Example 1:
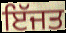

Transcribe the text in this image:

ਇੱਜਤ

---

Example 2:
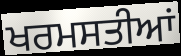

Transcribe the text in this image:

ਖਰਮਸਤੀਆਂ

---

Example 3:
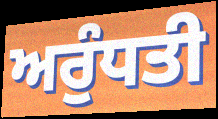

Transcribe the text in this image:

ਅਰੁੰਧਤੀ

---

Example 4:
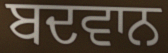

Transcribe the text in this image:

ਬਦਵਾਨ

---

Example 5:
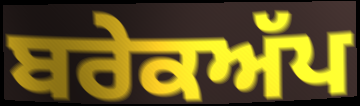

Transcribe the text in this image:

ਬਰੇਕਅੱਪ